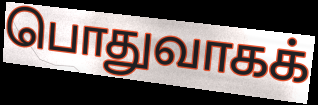
பொதுவாகக்